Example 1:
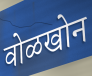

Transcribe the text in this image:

वोळखोन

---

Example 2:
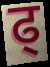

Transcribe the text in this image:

ढ्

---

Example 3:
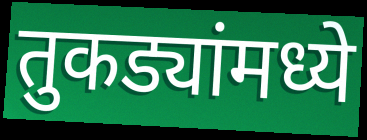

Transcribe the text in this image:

तुकड्यांमध्ये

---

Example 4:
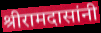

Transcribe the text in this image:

श्रीरामदासांनी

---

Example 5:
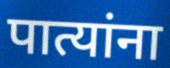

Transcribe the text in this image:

पात्यांना